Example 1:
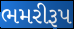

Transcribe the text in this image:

ભમરીરૂપ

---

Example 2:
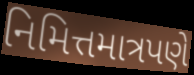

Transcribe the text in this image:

નિમિત્તમાત્રપણે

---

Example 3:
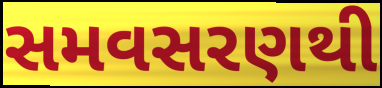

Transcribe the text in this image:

સમવસરણથી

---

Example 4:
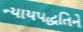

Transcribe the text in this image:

ન્યાયપદ્ધતિને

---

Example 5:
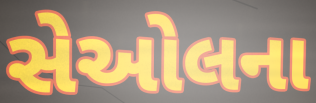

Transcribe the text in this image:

સેઓલના